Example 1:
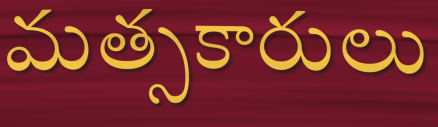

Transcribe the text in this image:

మత్సకారులు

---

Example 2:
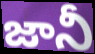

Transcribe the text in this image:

జానీ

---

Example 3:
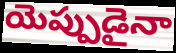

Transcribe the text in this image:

యెప్పుడైనా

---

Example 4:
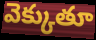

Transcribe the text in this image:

వెక్కుతూ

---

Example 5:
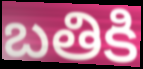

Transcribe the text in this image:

బతికి